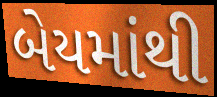
બેયમાંથી